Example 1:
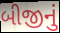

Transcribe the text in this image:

બીજીનું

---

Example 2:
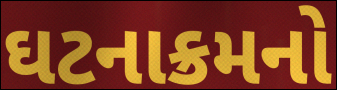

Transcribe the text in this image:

ઘટનાક્રમનો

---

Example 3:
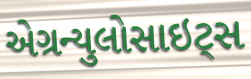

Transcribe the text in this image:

એગ્રન્યુલોસાઇટ્સ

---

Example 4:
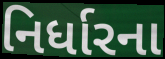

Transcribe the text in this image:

નિર્ધારના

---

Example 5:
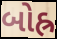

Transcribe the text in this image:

બોહ્ર